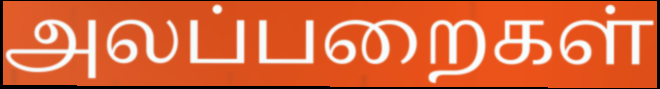
அலப்பறைகள்